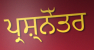
ਪ੍ਰਸ਼੍ਨੋੱਤਰ